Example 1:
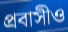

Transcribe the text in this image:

প্রবাসীও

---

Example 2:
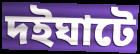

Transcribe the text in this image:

দইঘাটে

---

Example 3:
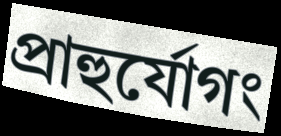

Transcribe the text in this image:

প্রাহুর্যোগং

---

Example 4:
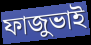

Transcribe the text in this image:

ফাজুভাই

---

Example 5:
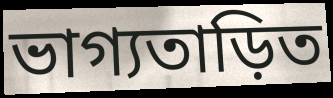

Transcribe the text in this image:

ভাগ্যতাড়িত